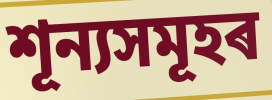
শূন্যসমূহৰ